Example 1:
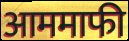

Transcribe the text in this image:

आममाफी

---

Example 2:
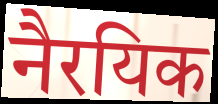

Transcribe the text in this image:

नैरयिक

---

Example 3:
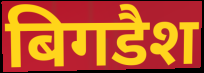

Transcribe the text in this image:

बिगडैश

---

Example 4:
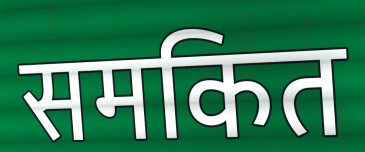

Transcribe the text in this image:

समकित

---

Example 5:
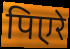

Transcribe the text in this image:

पिएरे